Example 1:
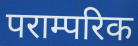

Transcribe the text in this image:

पराम्परिक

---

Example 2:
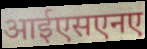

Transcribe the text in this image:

आईएसएनए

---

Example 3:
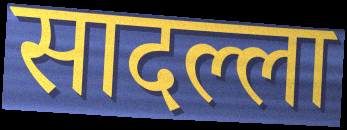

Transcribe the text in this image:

सादल्ला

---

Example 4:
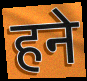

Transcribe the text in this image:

हने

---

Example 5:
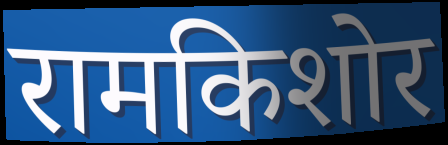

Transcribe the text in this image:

रामकिशोर